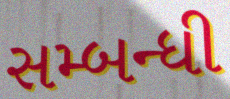
સમ્બન્ધી